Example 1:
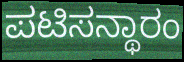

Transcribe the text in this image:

ಪಟಿಸನ್ಥಾರಂ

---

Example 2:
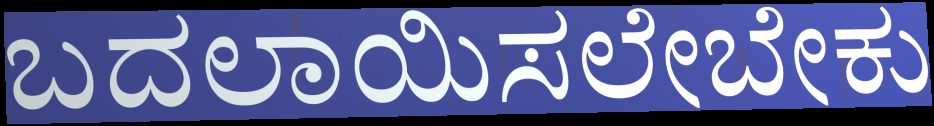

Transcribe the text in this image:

ಬದಲಾಯಿಸಲೇಬೇಕು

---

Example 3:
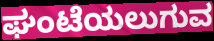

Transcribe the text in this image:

ಘಂಟೆಯಲುಗುವ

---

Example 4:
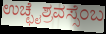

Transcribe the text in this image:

ಉಚ್ಛೈಶ್ರವಸ್ಸೆಂಬ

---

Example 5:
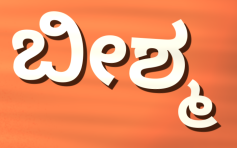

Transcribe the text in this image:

ಬೀಶ್ಮ